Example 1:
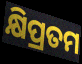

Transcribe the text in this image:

କ୍ଷିପ୍ରତମ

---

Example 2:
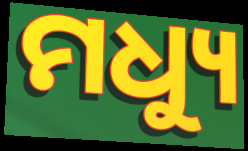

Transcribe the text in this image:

ମଧ୍ୟୁ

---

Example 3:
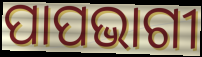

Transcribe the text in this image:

ପାପଭାଗୀ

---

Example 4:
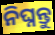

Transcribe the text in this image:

ନିଘ୍ନନ୍ତୁ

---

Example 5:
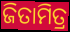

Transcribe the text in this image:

ଜିତାମିତ୍ର